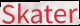
Skater